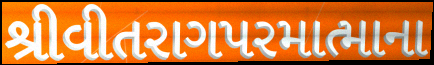
શ્રીવીતરાગપરમાત્માના